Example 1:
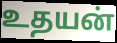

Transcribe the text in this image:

உதயன்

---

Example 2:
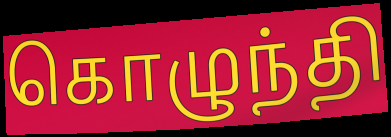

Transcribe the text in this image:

கொழுந்தி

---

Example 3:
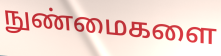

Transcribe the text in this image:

நுண்மைகளை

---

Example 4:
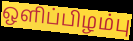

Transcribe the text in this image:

ஒளிப்பிழம்பு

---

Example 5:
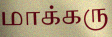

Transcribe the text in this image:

மாக்கரு